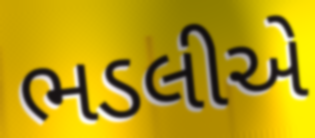
ભડલીએ